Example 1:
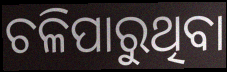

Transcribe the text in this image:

ଚଳିପାରୁଥିବା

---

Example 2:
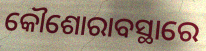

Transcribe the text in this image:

କୌଶୋରାବସ୍ଥାରେ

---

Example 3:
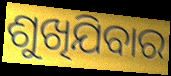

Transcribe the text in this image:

ଶୁଖିଯିବାର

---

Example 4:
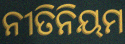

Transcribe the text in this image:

ନୀତିନିୟମ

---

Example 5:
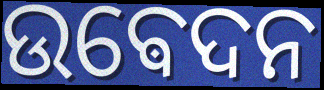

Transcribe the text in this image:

ଉଵେଦନ